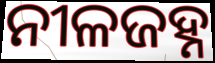
ନୀଳଜହ୍ନ